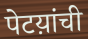
पेटय़ांची